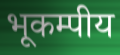
भूकम्पीय